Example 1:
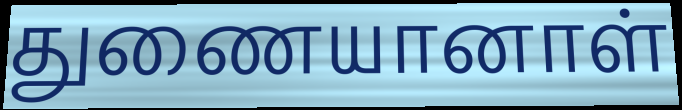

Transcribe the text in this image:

துணையானாள்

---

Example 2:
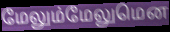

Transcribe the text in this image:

மேலும்மேலுமென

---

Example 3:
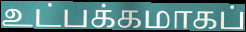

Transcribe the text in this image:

உட்பக்கமாகப்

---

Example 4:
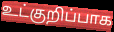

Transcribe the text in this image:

உட்குறிப்பாக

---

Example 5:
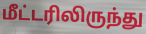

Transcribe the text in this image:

மீட்டரிலிருந்து